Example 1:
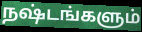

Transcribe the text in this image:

நஷ்டங்களும்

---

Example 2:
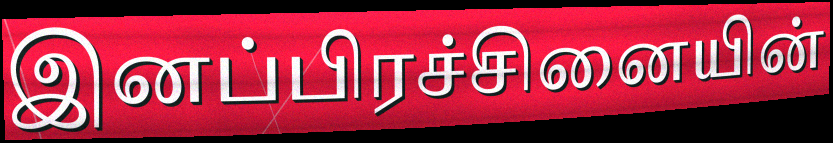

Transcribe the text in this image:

இனப்பிரச்சினையின்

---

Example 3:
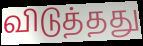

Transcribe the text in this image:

விடுத்தது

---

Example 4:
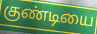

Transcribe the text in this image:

குண்டியை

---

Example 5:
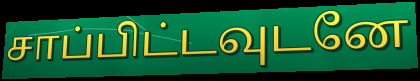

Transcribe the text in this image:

சாப்பிட்டவுடனே